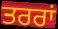
ਤਰਰਾਂ